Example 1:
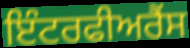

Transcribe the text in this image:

ਇੰਟਰਫੀਅਰੈਂਸ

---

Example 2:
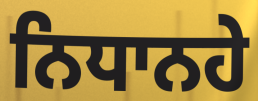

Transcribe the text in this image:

ਨਿਧਾਨਹੇ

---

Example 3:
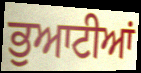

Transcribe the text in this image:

ਭੁਆਟੀਆਂ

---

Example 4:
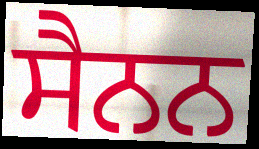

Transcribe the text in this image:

ਸੈਨਨ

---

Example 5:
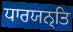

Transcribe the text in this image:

ਧਾਰਯਨ੍ਤਿ